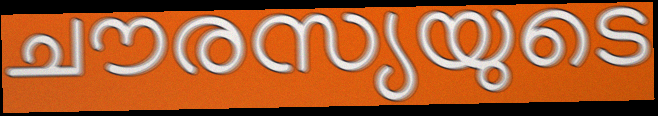
ചൗരസ്യയുടെ